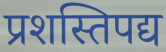
प्रशस्तिपद्य